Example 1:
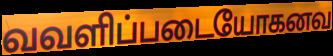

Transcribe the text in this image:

வவளிப்படையோகனவ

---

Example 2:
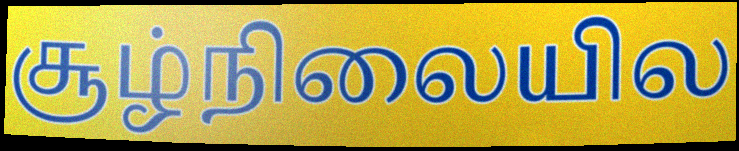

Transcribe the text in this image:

சூழ்நிலையில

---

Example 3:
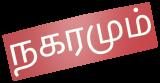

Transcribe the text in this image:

நகரமும்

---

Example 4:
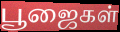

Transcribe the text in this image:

பூஜைகள்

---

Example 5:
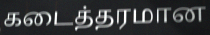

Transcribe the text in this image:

கடைத்தரமான